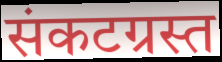
संकटग्रस्‍त